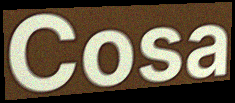
Cosa